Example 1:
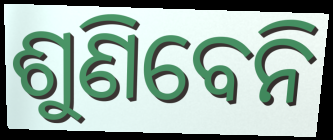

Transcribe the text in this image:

ଶୁଣିବେନି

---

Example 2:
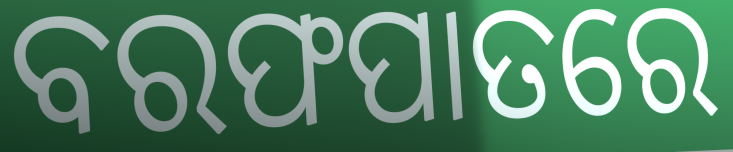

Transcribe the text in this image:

ବରଫପାତରେ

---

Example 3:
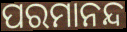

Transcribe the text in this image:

ପରମାନନ୍ଦ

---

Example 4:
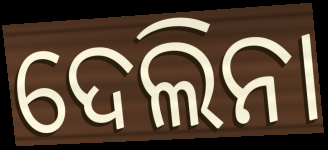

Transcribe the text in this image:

ଦେଲିନା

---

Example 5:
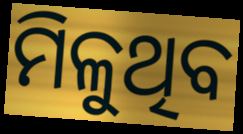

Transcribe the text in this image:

ମିଳୁଥିବ